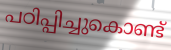
പഠിപ്പിച്ചുകൊണ്ട്